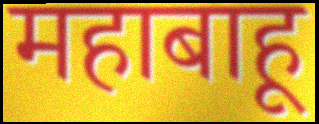
महाबाहू